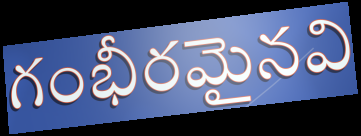
గంభీరమైనవి